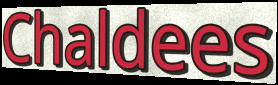
Chaldees